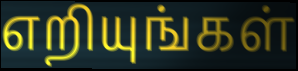
எறியுங்கள்